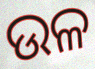
ଉଳ